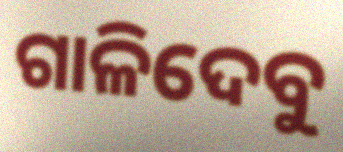
ଗାଳିଦେବୁ